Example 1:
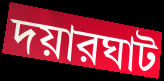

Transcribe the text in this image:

দয়ারঘাট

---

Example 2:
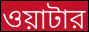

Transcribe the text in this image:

ওয়াটার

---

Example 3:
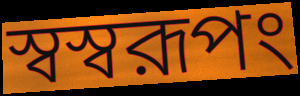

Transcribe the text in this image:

স্বস্বরূপং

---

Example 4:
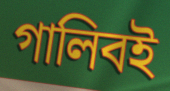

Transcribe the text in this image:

গালিবই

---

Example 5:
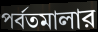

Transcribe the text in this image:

পর্বতমালার